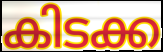
കിടക്ക